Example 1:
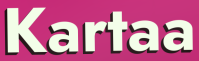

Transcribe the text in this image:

Kartaa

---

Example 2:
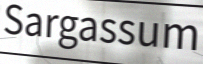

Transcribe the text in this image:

Sargassum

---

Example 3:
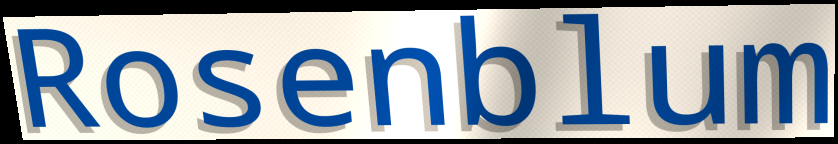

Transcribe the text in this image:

Rosenblum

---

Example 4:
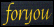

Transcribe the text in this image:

foryou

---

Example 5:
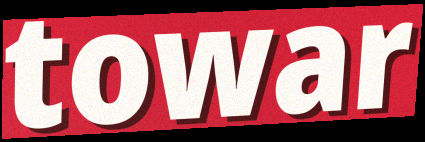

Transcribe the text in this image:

towar